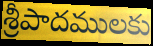
శ్రీపాదములకు